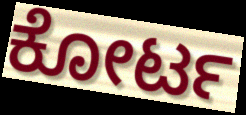
ಕೋರ್ಟ